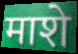
माशे